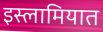
इस्लामियात